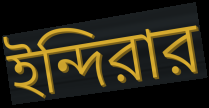
ইন্দিরার